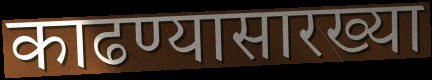
काढण्यासारख्या